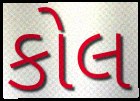
કોલ